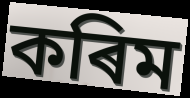
কৰিম